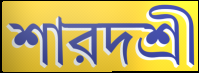
শারদশ্রী